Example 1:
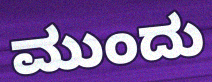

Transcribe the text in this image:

ಮುಂದು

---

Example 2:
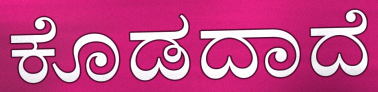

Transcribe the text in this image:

ಕೊಡದಾದೆ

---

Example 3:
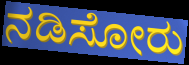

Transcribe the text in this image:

ನಡಿಸೋರು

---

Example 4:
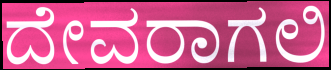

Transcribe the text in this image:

ದೇವರಾಗಲಿ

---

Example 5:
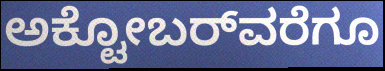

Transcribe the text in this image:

ಅಕ್ಟೋಬರ್‌ವರೆಗೂ